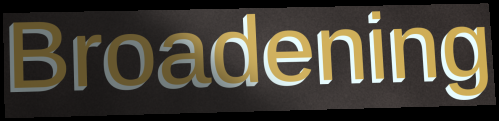
Broadening